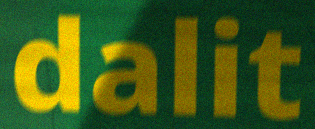
dalit